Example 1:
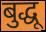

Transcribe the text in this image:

बुद्धू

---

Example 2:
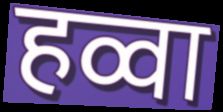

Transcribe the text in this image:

हव्वा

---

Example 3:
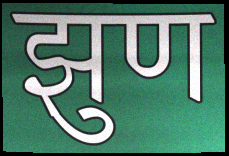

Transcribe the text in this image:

झुण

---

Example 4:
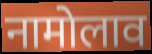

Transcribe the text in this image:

नामोलाव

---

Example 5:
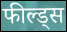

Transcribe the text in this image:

फील्ड्स